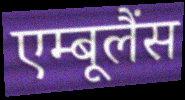
एम्बूलैंस